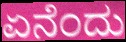
ಏನೆಂದು